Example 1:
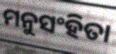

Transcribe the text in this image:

ମନୁସଂହିତା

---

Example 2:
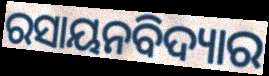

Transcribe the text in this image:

ରସାୟନବିଦ୍ୟାର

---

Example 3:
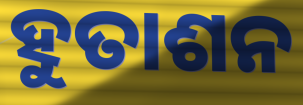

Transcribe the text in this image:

ହୁତାଶନ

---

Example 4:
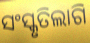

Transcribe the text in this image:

ସଂସ୍କୃତିଲାଗି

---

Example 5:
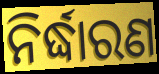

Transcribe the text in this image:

ନିର୍ଦ୍ଧାରଣ